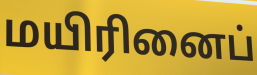
மயிரினைப்